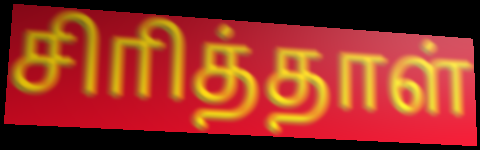
சிரித்தாள்